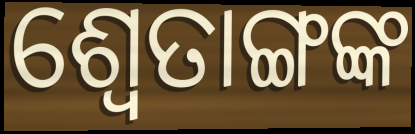
ଶ୍ୱେତାଙ୍ଗଙ୍କ